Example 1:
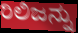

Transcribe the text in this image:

ರಿಲಿಜನ್ನು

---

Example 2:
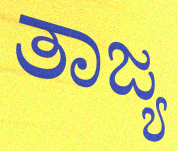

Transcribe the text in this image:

ತಾಜ್ಯ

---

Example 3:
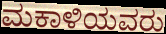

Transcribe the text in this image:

ಮಕಾಳಿಯವರು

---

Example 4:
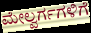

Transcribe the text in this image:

ಮೇಲ್ವರ್ಗಗಳಿಗೆ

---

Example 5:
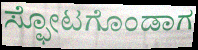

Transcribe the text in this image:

ಸ್ಫೋಟಗೊಂಡಾಗ